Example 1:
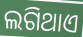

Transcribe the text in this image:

ଲଗିଥାଏ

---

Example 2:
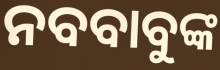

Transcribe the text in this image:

ନବବାବୁଙ୍କ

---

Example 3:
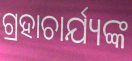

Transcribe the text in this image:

ଗ୍ରହାଚାର୍ଯ୍ୟଙ୍କ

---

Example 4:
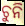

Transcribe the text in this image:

ଚୁନି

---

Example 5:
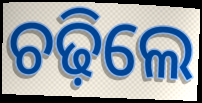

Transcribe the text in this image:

ଚଢ଼ିଲେ